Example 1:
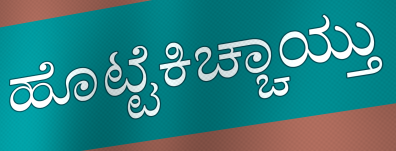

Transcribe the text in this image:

ಹೊಟ್ಟೆಕಿಚ್ಚಾಯ್ತು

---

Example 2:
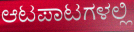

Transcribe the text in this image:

ಆಟಪಾಟಗಳಲ್ಲಿ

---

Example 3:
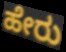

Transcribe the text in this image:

ಹೇರು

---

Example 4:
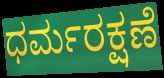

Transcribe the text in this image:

ಧರ್ಮರಕ್ಷಣೆ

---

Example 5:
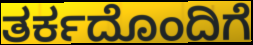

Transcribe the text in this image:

ತರ್ಕದೊಂದಿಗೆ